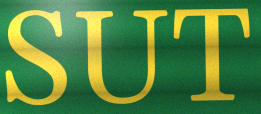
SUT